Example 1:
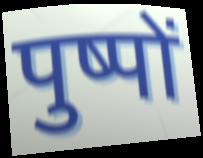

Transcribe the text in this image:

पुष्पों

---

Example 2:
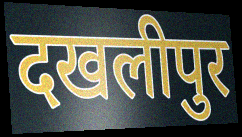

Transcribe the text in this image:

दखलीपुर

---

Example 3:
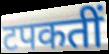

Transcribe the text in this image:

टपकतीं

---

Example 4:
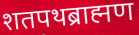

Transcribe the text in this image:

शतपथब्राह्मण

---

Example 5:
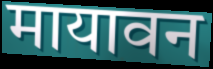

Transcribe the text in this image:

मायावन